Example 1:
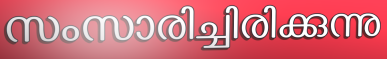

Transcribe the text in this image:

സംസാരിച്ചിരിക്കുന്നു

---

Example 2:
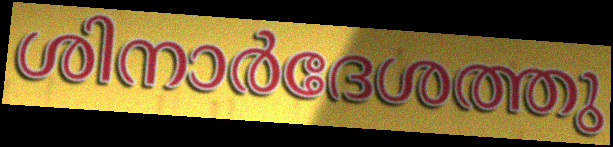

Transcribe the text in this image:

ശിനാർദേശത്തു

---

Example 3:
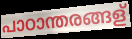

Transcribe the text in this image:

പാഠാന്തരങ്ങള്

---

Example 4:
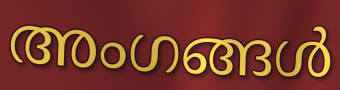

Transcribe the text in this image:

അംഗങ്ങൾ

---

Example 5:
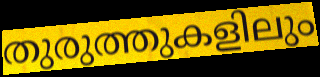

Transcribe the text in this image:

തുരുത്തുകളിലും